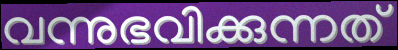
വന്നുഭവിക്കുന്നത്